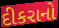
દીકરાનો